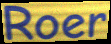
Roer